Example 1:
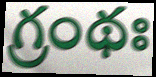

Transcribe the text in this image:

గ్రంథః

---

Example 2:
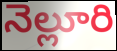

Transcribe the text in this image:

నెల్లూరి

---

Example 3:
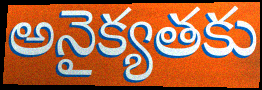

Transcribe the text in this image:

అనైక్యతకు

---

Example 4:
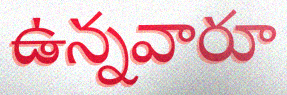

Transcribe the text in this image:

ఉన్నవారూ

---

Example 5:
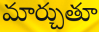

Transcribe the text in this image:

మార్చుతూ